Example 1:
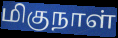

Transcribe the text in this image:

மிகுநாள்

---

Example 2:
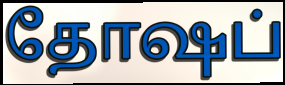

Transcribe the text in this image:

தோஷப்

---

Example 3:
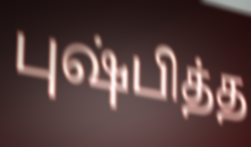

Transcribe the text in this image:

புஷ்பித்த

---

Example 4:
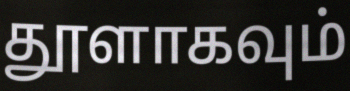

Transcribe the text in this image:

தூளாகவும்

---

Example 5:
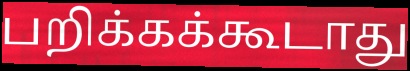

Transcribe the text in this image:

பறிக்கக்கூடாது